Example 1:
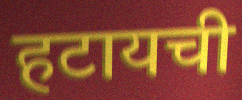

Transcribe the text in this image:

हटायची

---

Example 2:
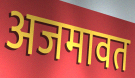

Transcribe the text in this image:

अजमावत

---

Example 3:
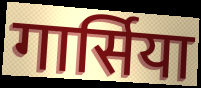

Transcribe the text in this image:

गार्सिया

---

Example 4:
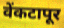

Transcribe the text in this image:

वेंकटापूर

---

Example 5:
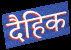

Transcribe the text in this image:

दैहिक